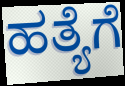
ಹತ್ಯೆಗೆ